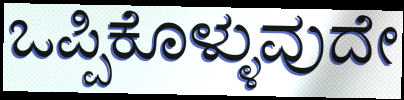
ಒಪ್ಪಿಕೊಳ್ಳುವುದೇ